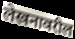
लेखनावरील